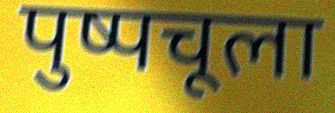
पुष्पचूला